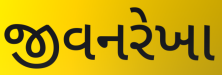
જીવનરેખા